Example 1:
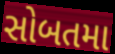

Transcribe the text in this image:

સોબતમા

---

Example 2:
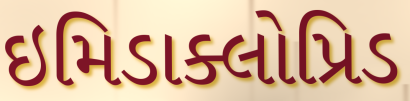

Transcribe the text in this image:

ઇમિડાક્લોપ્રિડ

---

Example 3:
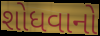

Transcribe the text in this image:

શોધવાનો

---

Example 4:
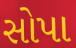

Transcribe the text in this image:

સોપા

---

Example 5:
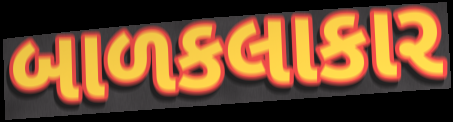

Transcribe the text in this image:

બાળકલાકાર